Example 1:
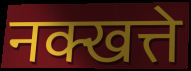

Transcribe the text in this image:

नक्खत्ते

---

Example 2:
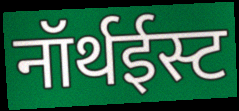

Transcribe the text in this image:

नॉर्थईस्‍ट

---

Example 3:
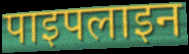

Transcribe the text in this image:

पाइपलाइन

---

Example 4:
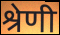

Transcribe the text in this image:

श्रेणी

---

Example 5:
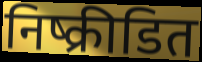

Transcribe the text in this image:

निष्क्रीडित